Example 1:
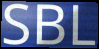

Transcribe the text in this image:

SBL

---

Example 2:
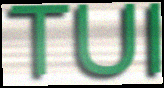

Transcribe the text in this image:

TUI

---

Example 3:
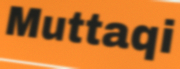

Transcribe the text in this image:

Muttaqi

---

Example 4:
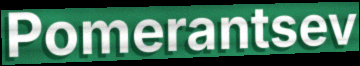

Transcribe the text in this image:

Pomerantsev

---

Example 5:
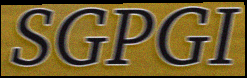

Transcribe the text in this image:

SGPGI